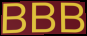
BBB